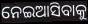
ନେଇଆସିବାକୁ